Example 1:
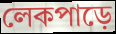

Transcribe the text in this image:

লেকপাড়ে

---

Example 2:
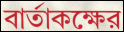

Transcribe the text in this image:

বার্তাকক্ষের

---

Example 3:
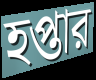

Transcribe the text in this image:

হপ্তার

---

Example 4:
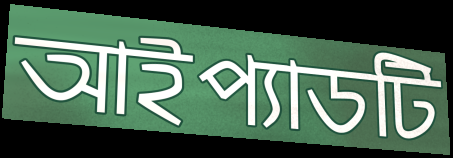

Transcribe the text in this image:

আইপ্যাডটি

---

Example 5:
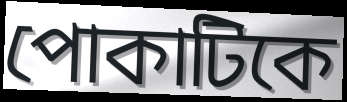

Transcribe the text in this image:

পোকাটিকে